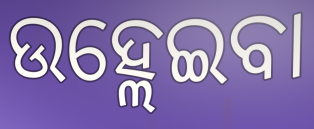
ଉହ୍ଲେଇବା